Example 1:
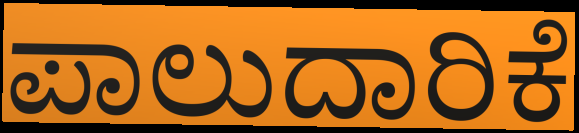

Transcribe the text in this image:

ಪಾಲುದಾರಿಕೆ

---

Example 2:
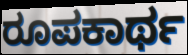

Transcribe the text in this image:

ರೂಪಕಾರ್ಥ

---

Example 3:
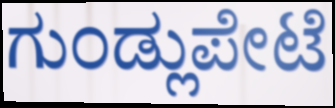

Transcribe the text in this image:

ಗುಂಡ್ಲುಪೇಟೆ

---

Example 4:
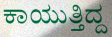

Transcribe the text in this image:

ಕಾಯುತ್ತಿದ್ದ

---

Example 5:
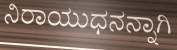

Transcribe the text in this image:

ನಿರಾಯುಧನನ್ನಾಗಿ